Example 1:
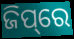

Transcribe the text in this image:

ଜିପ୍‌ରେ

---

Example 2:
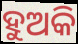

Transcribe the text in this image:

ହୁଅକି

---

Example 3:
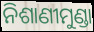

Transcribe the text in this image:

ନିଶାଣୀମୁଣ୍ଡା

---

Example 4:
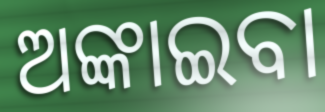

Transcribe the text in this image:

ଅଙ୍କାଇବା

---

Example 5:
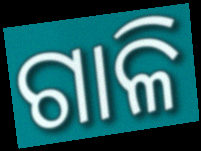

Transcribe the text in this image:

ଗାଳି